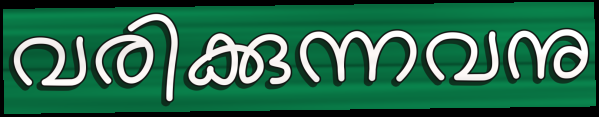
വരിക്കുന്നവനു